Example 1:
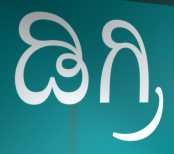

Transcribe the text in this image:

ಡಿಗ್ರಿ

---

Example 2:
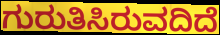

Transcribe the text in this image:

ಗುರುತಿಸಿರುವದಿದೆ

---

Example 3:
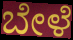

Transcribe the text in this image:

ಬೇಳೆ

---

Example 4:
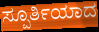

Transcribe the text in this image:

ಸ್ಪೂರ್ತಿಯಾದ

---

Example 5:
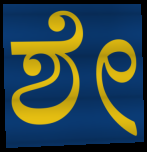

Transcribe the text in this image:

ಶೇ